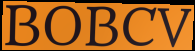
BOBCV